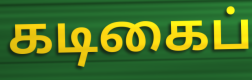
கடிகைப்